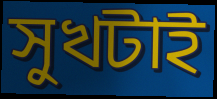
সুখটাই